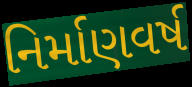
નિર્માણવર્ષ